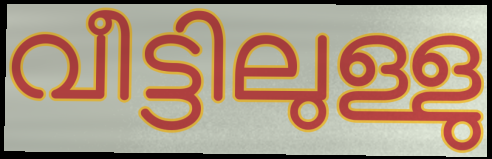
വീട്ടിലുള്ളു